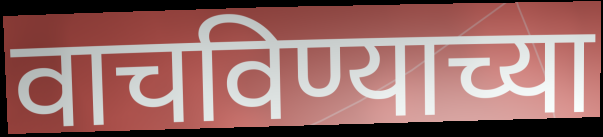
वाचविण्याच्या